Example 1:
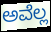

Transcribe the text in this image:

ಅವೆಲ್ಲ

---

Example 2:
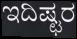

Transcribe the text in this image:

ಇದಿಷ್ಟರ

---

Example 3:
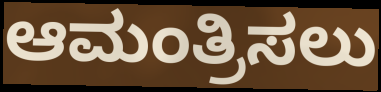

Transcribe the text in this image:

ಆಮಂತ್ರಿಸಲು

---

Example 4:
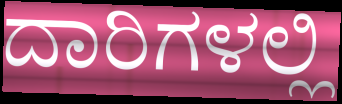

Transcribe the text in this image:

ದಾರಿಗಳಲ್ಲಿ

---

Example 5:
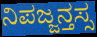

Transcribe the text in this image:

ನಿಪಜ್ಜನ್ತಸ್ಸ